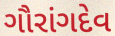
ગૌરાંગદેવ